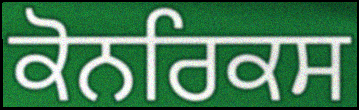
ਕੋਨਰਿਕਸ